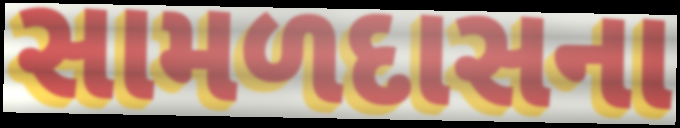
સામળદાસના